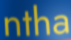
ntha